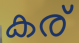
കര്